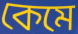
কেমে